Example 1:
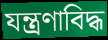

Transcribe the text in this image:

যন্ত্রণাবিদ্ধ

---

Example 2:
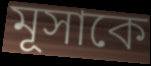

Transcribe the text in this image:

মূসাকে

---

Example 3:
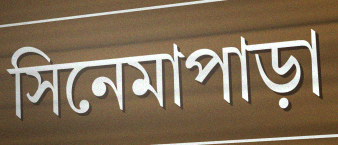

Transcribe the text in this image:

সিনেমাপাড়া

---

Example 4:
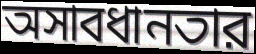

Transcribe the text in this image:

অসাবধানতার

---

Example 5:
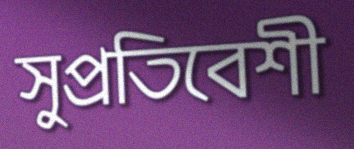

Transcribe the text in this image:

সুপ্রতিবেশী